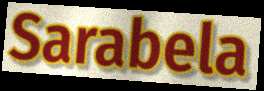
Sarabela